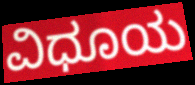
ವಿಧೂಯ